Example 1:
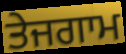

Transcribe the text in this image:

ਤੇਜਗਾਮ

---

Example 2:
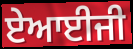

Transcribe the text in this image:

ਏਆਈਜੀ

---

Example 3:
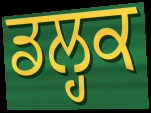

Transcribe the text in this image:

ਡਲ੍ਹਕ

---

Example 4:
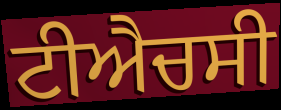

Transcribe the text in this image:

ਟੀਐਚਸੀ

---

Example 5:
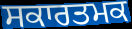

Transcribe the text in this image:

ਸਕਾਰਤਮਕ